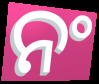
ନଂ